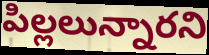
పిల్లలున్నారని